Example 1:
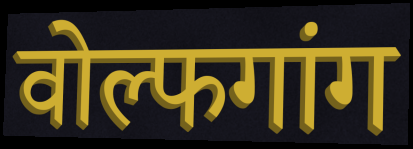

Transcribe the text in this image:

वोल्फगांग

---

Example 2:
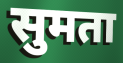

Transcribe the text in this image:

सुमता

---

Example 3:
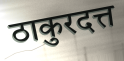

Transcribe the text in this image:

ठाकुरदत्त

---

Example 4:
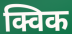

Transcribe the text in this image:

क्विक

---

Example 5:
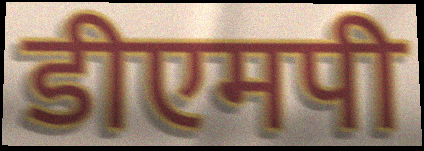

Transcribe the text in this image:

डीएमपी